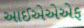
આઈએએએફ